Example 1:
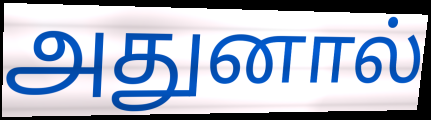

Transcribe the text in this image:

அதுனால்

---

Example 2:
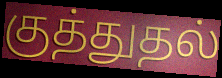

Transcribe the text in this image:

குத்துதல்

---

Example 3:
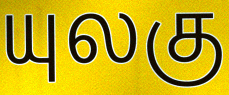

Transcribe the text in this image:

யுலகு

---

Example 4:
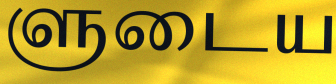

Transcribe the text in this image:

ளுடைய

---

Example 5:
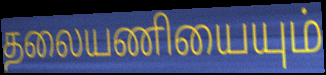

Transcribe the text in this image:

தலையணியையும்